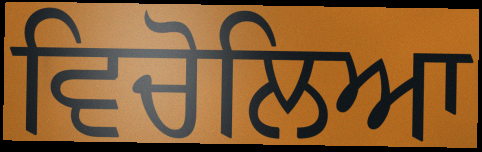
ਵਿਚੋਲਿਆ